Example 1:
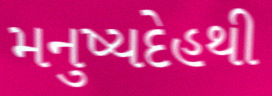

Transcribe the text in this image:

મનુષ્યદેહથી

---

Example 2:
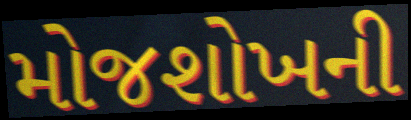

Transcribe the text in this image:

મોજશોખની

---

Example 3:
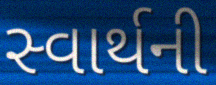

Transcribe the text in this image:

સ્વાર્થની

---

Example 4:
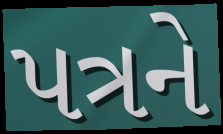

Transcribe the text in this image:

પત્રને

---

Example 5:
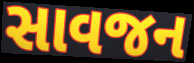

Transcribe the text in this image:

સાવજન